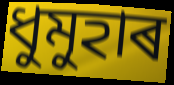
ধুমুহাৰ